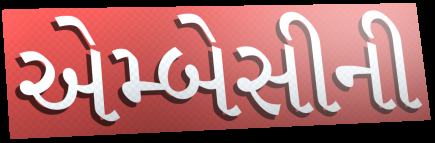
એમ્બેસીની